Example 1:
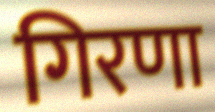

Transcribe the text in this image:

गिरणा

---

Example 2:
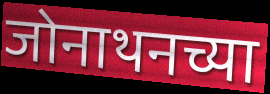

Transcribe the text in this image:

जोनाथनच्या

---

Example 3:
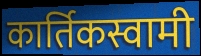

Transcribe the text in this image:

कार्तिकस्वामी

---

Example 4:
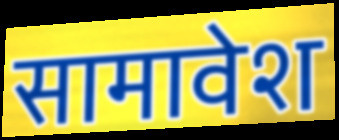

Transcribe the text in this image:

सामावेश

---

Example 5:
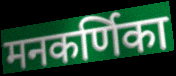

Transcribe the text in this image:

मनकर्णिका